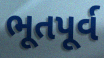
ભૂતપૂર્વ